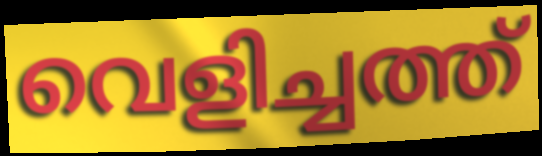
വെളിച്ചത്ത്